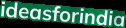
ideasforindia